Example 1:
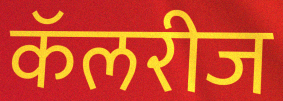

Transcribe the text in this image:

कॅलरीज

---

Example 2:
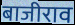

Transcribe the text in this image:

बाजीराव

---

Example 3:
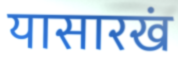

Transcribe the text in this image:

यासारखं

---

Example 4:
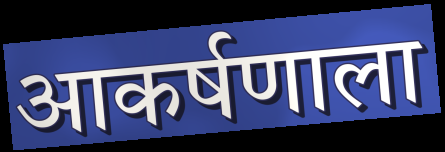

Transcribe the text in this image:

आकर्षणाला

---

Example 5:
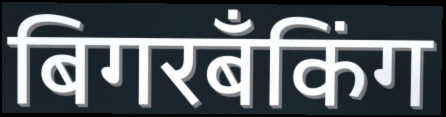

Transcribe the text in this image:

बिगरबँकिंग